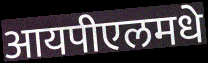
आयपीएलमधे